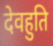
देवहुति